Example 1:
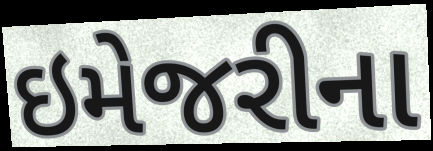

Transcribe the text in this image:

ઇમેજરીના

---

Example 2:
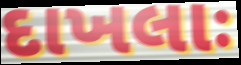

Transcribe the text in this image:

દાખલાઃ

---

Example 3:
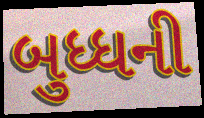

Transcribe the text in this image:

બુધ્ધની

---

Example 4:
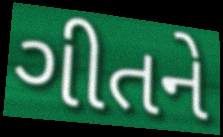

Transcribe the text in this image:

ગીતને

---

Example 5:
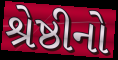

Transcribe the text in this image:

શ્રેષ્ઠીનો